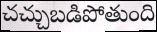
చచ్చుబడిపోతుంది